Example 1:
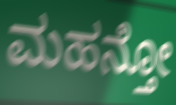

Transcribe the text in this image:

ಮಹನ್ತೋ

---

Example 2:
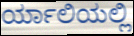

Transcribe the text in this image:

ರ್ಯಾಲಿಯಲ್ಲಿ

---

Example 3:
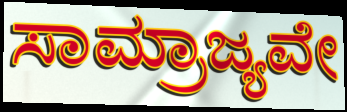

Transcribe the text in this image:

ಸಾಮ್ರಾಜ್ಯವೇ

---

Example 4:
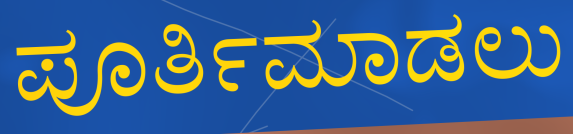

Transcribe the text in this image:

ಪೂರ್ತಿಮಾಡಲು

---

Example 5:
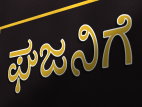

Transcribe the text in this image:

ಘಜನಿಗೆ